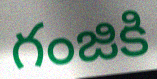
గంజికి